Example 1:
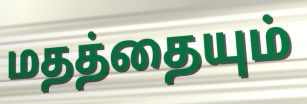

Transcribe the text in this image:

மதத்தையும்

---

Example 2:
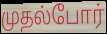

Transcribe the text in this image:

முதல்போர்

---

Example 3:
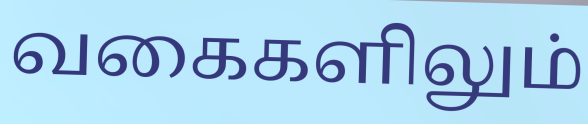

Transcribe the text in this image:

வகைகளிலும்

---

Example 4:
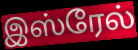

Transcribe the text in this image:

இஸ்ரேல்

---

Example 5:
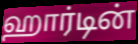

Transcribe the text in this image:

ஹார்டின்